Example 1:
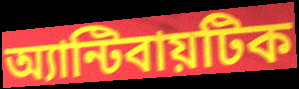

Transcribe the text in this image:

অ্যান্টিবায়টিক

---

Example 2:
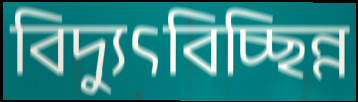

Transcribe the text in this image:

বিদ্যুৎবিচ্ছিন্ন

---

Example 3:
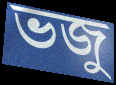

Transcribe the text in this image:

ভজু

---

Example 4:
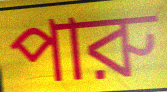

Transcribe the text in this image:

পারু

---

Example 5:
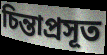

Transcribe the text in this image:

চিন্তাপ্রসূত